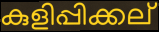
കുളിപ്പിക്കല്